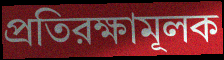
প্রতিরক্ষামূলক